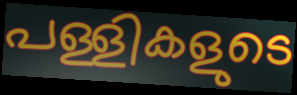
പള്ളികളുടെ